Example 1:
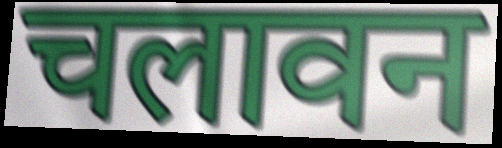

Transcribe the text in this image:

चलावन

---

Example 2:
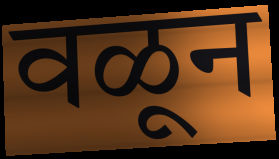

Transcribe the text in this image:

वळून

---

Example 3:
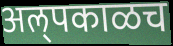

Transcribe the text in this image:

अल्पकाळच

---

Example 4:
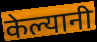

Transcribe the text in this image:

केल्यानी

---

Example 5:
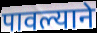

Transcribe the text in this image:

पावल्याने